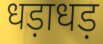
धड़ाधड़